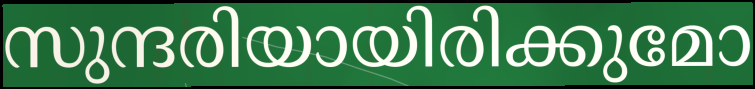
സുന്ദരിയായിരിക്കുമോ